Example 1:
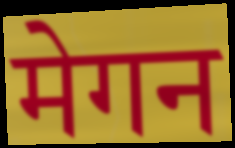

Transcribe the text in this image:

मेगन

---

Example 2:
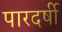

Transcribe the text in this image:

पारदर्षी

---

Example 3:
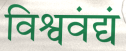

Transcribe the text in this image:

विश्ववंद्यं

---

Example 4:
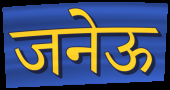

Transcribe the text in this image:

जनेऊ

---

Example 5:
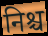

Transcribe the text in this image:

निश्च